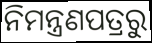
ନିମନ୍ତ୍ରଣପତ୍ରରୁ